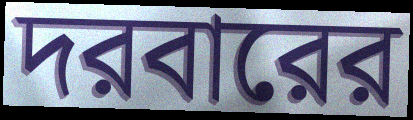
দরবারের